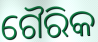
ଗୈରିକ